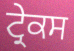
ਟ੍ਰੇਕਸ